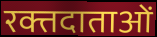
रक्तदाताओं